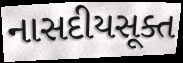
નાસદીયસૂક્ત